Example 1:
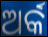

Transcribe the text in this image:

ଅର୍କ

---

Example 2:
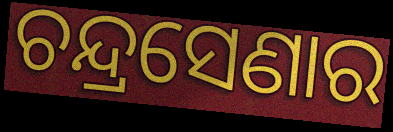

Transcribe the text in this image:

ଚନ୍ଦ୍ରସେଣାର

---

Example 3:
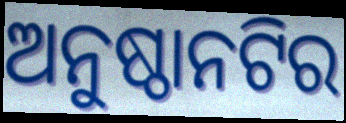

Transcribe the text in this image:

ଅନୁଷ୍ଠାନଟିର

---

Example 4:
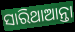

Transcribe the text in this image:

ସାରିଥାଆନ୍ତା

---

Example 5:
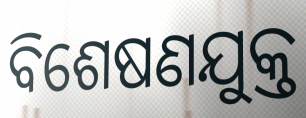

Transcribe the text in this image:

ବିଶେଷଣଯୁକ୍ତ